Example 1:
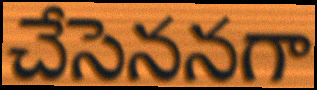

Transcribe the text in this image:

చేసెననగా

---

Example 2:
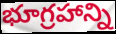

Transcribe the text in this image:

భూగ్రహాన్ని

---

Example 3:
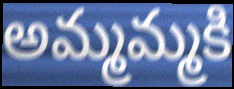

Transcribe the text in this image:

అమ్మమ్మకి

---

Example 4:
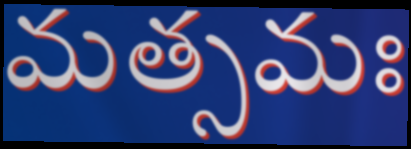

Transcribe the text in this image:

మత్సమః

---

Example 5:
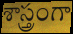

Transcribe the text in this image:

శాస్త్రంగా